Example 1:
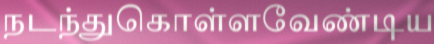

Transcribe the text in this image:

நடந்துகொள்ளவேண்டிய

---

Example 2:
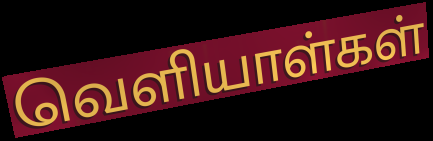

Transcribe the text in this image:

வெளியாள்கள்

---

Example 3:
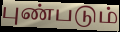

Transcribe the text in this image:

புண்படும்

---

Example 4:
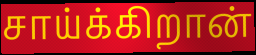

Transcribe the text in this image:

சாய்க்கிறான்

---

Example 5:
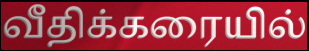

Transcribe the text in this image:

வீதிக்கரையில்